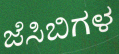
ಜೆಸಿಬಿಗಳ